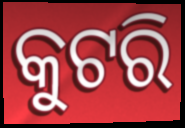
କୁଟରି